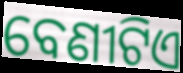
ବେଣୀଟିଏ